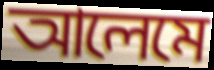
আলেমে